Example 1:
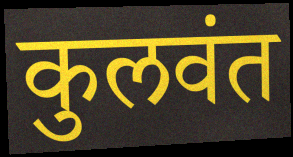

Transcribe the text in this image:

कुलवंत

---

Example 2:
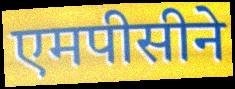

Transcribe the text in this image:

एमपीसीने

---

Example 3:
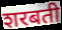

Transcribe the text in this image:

शरबती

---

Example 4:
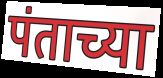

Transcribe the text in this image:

पंताच्या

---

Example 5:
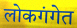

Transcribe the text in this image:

लोकगंगेत